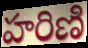
హరిణి